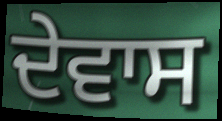
ਦੇਵਾਸ